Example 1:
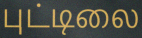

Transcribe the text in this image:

புட்டிலை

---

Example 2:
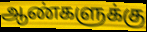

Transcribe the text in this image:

ஆண்களுக்கு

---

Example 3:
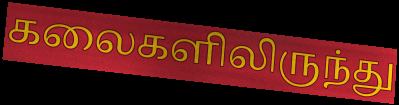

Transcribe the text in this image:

கலைகளிலிருந்து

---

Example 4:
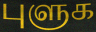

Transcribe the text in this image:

புளுக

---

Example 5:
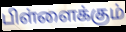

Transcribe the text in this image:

பிள்ளைக்கும்